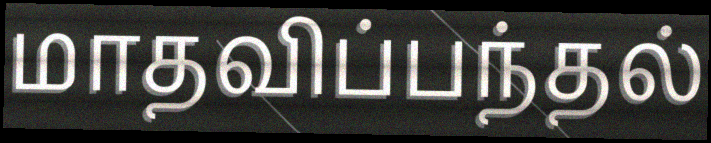
மாதவிப்பந்தல்